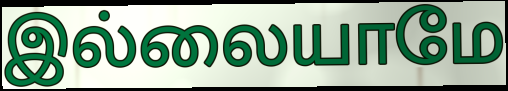
இல்லையாமே